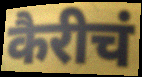
कैरीचं